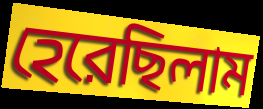
হেরেছিলাম